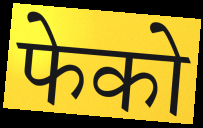
फेको